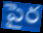
పైర